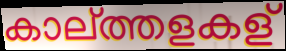
കാല്ത്തളകള്